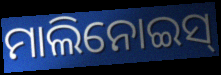
ମାଲିନୋଇସ୍